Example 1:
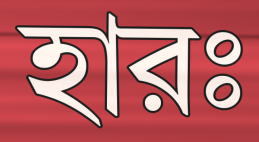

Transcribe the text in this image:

হারঃ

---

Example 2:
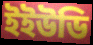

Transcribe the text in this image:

ইইউডি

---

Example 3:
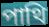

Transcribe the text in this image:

পাথি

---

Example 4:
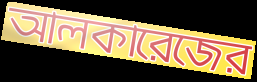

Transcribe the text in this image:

আলকারেজের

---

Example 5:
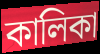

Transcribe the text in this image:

কালিকা